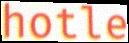
hotle